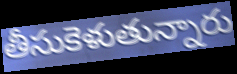
తీసుకెళుతున్నారు